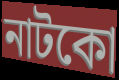
নাটকো